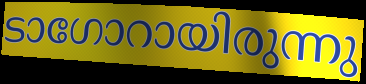
ടാഗോറായിരുന്നു